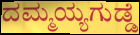
ದಮ್ಮಯ್ಯಗುಡ್ಡೆ